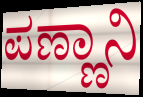
ಪಣ್ಣಾನಿ